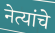
नेत्यांचे